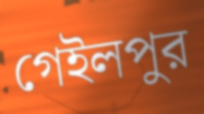
গেইলপুর